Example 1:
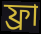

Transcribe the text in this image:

ফ্রা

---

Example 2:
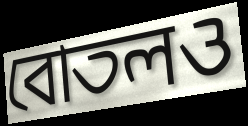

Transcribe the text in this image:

বোতলও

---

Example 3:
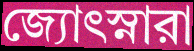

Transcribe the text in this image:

জ্যোৎস্নারা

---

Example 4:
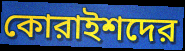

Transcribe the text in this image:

কোরাইশদের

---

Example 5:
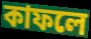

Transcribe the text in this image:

কাফলে